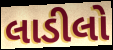
લાડીલો